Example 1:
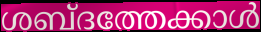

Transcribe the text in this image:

ശബ്ദത്തേക്കാൾ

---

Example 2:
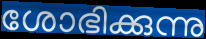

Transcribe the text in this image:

ശോഭിക്കുന്നു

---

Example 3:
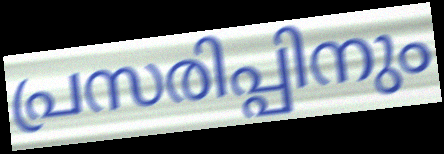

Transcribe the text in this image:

പ്രസരിപ്പിനും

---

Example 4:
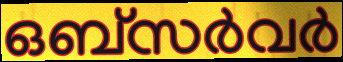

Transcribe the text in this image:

ഒബ്സർവർ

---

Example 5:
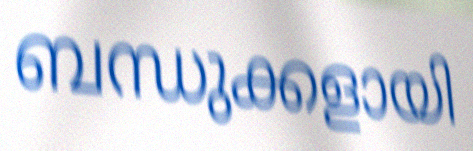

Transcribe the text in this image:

ബന്ധുക്കളായി